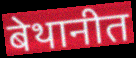
बेथानीत